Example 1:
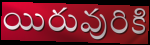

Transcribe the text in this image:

యిరువురికి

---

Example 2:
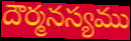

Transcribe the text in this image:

దౌర్మనస్యము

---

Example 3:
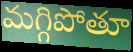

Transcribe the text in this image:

మగ్గిపోతూ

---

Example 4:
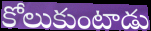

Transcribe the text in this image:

కోలుకుంటాడు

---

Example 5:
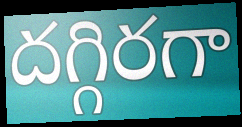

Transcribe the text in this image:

దగ్గిరగా